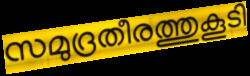
സമുദ്രതീരത്തുകൂടി